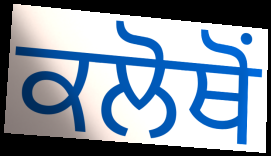
ਕਲੋਥੋਂ